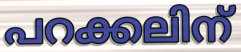
പറക്കലിന്